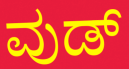
ವುಡ್